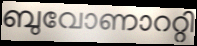
ബുവോണാററ്റി